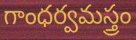
గాంధర్వమస్త్రం